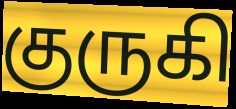
குருகி